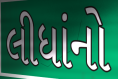
લીધાંનો